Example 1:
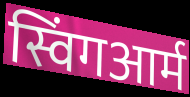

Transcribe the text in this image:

स्विंगआर्म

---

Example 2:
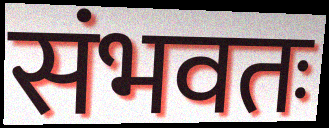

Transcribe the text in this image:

संभवतः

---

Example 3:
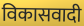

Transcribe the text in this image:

विकासवादी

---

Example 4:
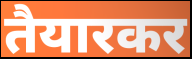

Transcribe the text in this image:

तैयारकर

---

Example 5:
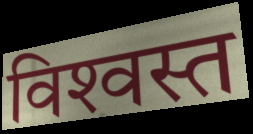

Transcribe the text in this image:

विश्‍वस्त